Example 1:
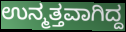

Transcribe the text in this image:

ಉನ್ಮತ್ತವಾಗಿದ್ದ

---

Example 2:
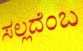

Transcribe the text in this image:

ಸಲ್ಲದೆಂಬ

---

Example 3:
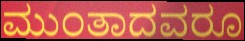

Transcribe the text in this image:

ಮುಂತಾದವರೂ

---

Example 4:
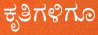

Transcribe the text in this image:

ಕೃತಿಗಳಿಗೂ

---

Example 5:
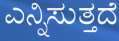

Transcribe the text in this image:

ಎನ್ನಿಸುತ್ತದೆ